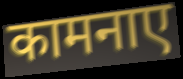
कामनाए